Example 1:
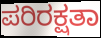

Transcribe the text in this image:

ಪರಿರಕ್ಷತಾ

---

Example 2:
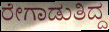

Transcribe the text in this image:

ರೇಗಾಡುತಿದ್ದ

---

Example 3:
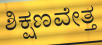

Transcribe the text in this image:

ಶಿಕ್ಷಣವೇತ್ತ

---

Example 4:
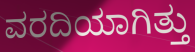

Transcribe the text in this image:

ವರದಿಯಾಗಿತ್ತು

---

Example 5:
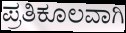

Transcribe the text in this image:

ಪ್ರತಿಕೂಲವಾಗಿ